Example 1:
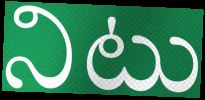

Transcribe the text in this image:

నిటు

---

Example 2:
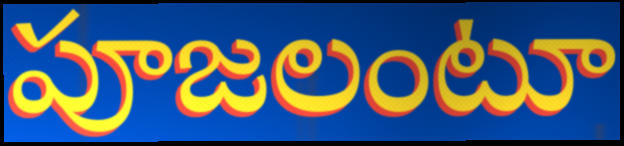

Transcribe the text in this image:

పూజలంటూ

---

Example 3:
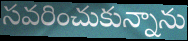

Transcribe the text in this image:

సవరించుకున్నాను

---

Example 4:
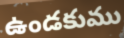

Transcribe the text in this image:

ఉండకుము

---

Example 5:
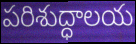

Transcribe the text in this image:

పరిశుద్ధాలయ